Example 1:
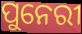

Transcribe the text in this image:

ପୁନେରୀ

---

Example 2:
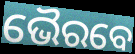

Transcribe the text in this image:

ଭୈରବେ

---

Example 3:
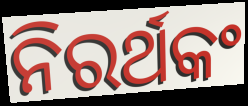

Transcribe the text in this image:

ନିରର୍ଥକଂ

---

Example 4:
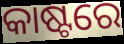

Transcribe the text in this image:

କାଷ୍ଟରେ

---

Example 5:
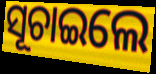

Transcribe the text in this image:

ସୂଚାଇଲେ